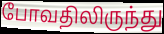
போவதிலிருந்து